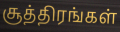
சூத்திரங்கள்